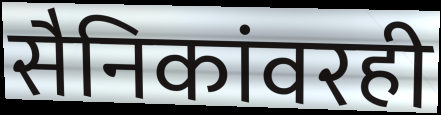
सैनिकांवरही